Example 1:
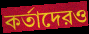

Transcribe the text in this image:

কর্তাদেরও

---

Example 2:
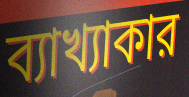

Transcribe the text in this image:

ব্যাখ্যাকার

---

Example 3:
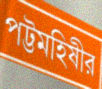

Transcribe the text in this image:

পট্টমহিষীর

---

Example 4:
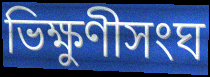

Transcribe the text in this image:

ভিক্ষুণীসংঘ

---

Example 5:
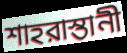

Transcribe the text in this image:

শাহরাস্তানী